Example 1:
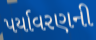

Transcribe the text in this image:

પર્યાવરણની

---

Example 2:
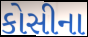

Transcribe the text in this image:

કોસીના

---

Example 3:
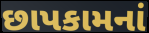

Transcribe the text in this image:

છાપકામનાં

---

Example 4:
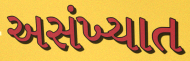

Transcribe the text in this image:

અસંખ્યાત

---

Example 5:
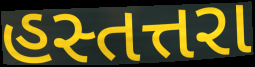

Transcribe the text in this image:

હસ્તત્તરા